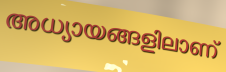
അധ്യായങ്ങളിലാണ്